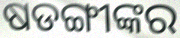
ଷଡଙ୍ଗୀଙ୍କର